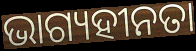
ଭାଗ୍ୟହୀନତା